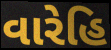
વારેહિ